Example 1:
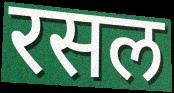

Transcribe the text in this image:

रसल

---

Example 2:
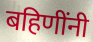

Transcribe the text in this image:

बहिणींनी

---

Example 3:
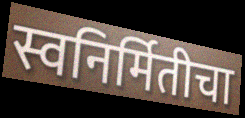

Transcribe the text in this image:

स्वनिर्मितीचा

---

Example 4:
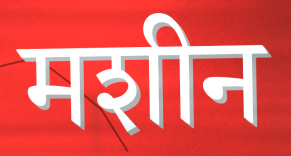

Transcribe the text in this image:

मशीन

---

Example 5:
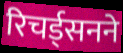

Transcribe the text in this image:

रिचर्ड्सनने